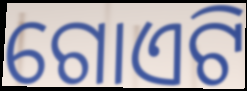
ଗୋଏଟି